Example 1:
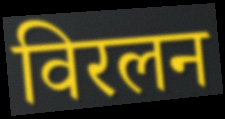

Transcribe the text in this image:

विरलन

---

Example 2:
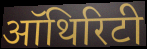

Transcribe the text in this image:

ऑथिरिटी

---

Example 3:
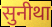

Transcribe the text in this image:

सुनीथा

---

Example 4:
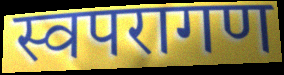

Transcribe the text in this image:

स्वपरागण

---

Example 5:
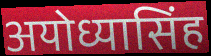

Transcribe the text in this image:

अयोध्यासिंह